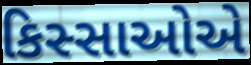
કિસ્સાઓએ